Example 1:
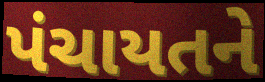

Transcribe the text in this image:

પંચાયતને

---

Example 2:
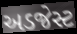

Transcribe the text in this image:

અડજેસ્ટ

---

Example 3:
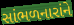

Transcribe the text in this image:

સાંભળનારાંને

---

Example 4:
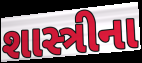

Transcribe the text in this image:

શાસ્ત્રીના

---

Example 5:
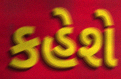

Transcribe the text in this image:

કહેશે